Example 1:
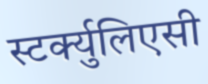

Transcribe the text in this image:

स्टर्क्युलिएसी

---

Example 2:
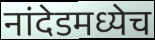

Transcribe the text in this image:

नांदेडमध्येच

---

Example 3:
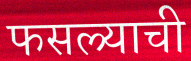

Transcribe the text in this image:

फसल्याची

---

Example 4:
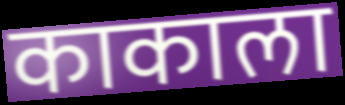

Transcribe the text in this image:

काकाला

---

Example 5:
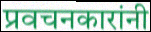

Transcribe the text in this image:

प्रवचनकारांनी